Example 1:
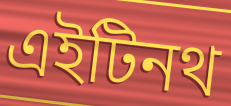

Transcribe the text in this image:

এইটিনথ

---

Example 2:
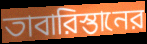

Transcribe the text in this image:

তাবারিস্তানের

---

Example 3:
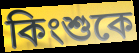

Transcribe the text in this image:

কিংশুকে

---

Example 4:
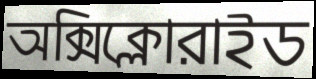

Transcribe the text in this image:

অক্সিক্লোরাইড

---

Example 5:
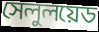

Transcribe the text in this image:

সেলুলয়েড